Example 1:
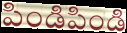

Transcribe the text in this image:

పిండిపిండి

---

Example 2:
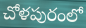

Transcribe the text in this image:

చోళపురంలో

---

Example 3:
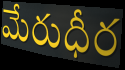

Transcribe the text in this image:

మేరుధీర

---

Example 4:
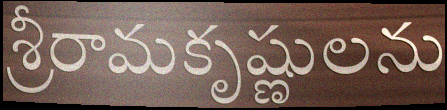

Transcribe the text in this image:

శ్రీరామకృష్ణులను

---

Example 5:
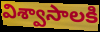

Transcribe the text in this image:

విశ్వాసాలకి